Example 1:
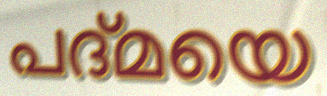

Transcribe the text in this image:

പദ്മയെ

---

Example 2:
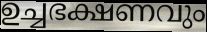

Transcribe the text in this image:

ഉച്ചഭക്ഷണവും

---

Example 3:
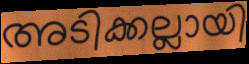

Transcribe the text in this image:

അടിക്കല്ലായി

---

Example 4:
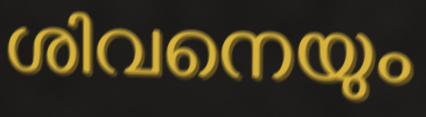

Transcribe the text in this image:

ശിവനെയും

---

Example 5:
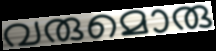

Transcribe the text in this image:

വരുമൊരു